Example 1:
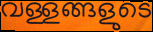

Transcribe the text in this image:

വള്ളങ്ങളുടെ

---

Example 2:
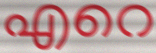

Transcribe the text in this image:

എറെ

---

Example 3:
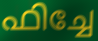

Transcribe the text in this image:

ഫിച്ചേ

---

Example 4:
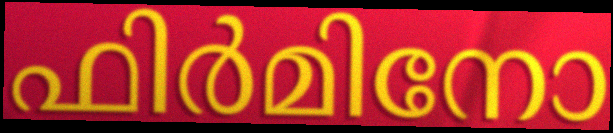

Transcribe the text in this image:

ഫിർമിനോ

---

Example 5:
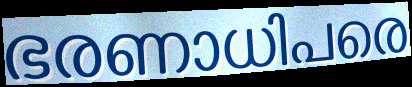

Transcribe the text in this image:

ഭരണാധിപരെ